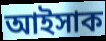
আইসাক